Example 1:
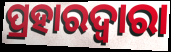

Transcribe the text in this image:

ପ୍ରହାରଦ୍ଵାରା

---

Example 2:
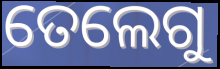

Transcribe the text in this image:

ତେଲେଗୁ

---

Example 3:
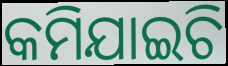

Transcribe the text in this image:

କମିଯାଇଚି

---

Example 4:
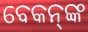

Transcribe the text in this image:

ବେକନ୍‌ଙ୍କ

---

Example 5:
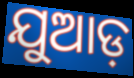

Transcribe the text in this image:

ଯୁଆଡ଼